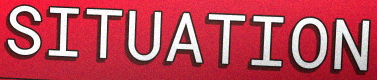
SITUATION